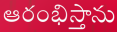
ఆరంభిస్తాను